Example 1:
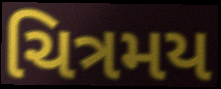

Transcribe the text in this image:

ચિત્રમય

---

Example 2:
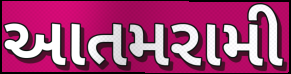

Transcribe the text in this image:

આતમરામી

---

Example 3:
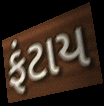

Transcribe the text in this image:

ફંટાય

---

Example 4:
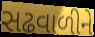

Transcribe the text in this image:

સઢવાળીને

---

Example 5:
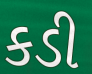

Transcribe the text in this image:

કડી